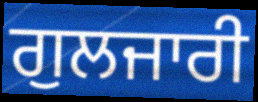
ਗੁਲਜਾਰੀ